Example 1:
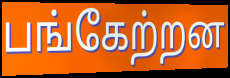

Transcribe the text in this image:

பங்கேற்றன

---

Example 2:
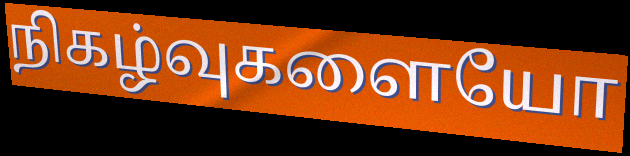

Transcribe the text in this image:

நிகழ்வுகளையோ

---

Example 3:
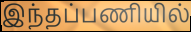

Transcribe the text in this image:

இந்தப்பணியில்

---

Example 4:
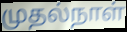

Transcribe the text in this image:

முதல்நாள்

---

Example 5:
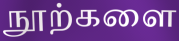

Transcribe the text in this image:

நூற்களை